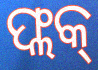
ଫ୍ଲକ୍